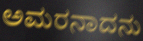
ಅಮರನಾದನು